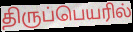
திருப்பெயரில்